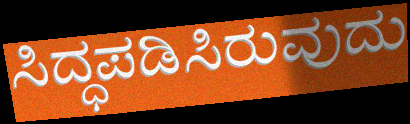
ಸಿದ್ಧಪಡಿಸಿರುವುದು